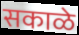
सकाळे